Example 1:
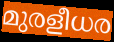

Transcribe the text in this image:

മുരളീധര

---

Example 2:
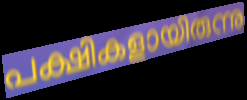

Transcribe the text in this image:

പക്ഷികളായിരുന്നു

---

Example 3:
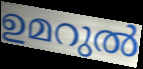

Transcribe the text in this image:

ഉമറുൽ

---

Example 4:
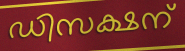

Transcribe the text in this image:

ഡിസക്ഷന്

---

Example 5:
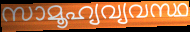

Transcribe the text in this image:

സാമൂഹ്യവ്യവസ്ഥ